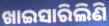
ଖାଇସାରିଲିଣି